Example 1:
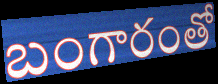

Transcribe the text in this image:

బంగారంతో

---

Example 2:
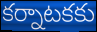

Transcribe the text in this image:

కర్నాటకకు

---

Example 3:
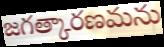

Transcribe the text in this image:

జగత్కారణమను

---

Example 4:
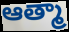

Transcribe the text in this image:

ఆత్మా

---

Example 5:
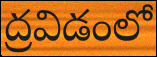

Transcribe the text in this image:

ద్రవిడంలో